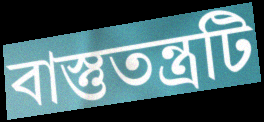
বাস্তুতন্ত্রটি